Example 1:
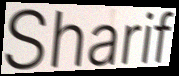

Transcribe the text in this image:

Sharif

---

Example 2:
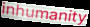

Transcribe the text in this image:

inhumanity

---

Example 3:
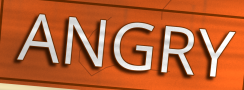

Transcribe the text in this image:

ANGRY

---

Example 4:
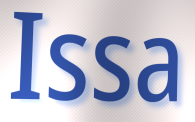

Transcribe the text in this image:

Issa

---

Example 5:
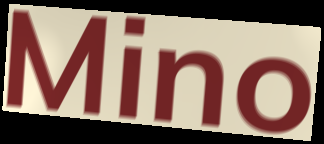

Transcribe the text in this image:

Mino